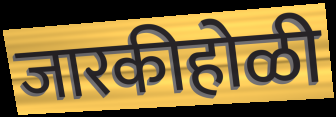
जारकीहोळी